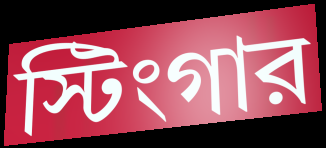
স্টিংগার